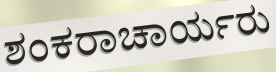
ಶಂಕರಾಚಾರ್ಯರು